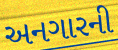
અનગારની